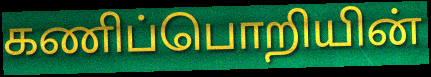
கணிப்பொறியின்